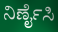
ನಿರ್ಣೈಸಿ